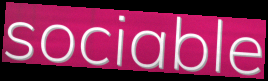
sociable